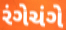
રંગેચંગે